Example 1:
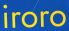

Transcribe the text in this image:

iroro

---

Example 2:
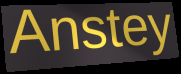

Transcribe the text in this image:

Anstey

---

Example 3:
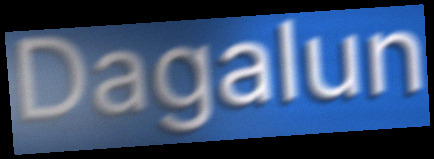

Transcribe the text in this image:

Dagalun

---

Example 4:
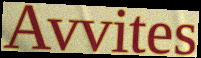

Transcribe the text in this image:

Avvites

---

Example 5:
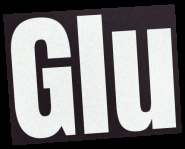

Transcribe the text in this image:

Glu